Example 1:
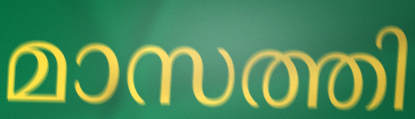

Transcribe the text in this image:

മാസത്തി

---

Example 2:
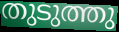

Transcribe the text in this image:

തുടുത്തു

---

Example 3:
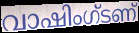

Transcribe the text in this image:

വാഷിംഗ്ടണ്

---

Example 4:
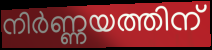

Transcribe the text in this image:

നിർണ്ണയത്തിന്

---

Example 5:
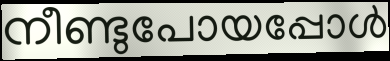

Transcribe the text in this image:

നീണ്ടുപോയപ്പോൾ